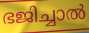
ഭജിച്ചാൽ